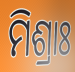
ମିଶ୍ରାଃ